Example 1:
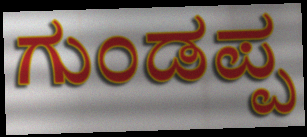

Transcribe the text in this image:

ಗುಂಡಪ್ಪ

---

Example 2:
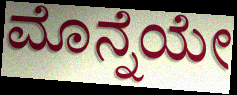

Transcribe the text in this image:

ಮೊನ್ನೆಯೇ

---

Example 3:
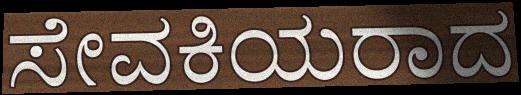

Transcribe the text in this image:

ಸೇವಕಿಯರಾದ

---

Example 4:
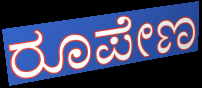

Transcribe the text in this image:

ರೂಪೇಣ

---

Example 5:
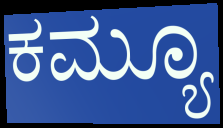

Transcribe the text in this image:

ಕಮ್ಯೂ